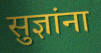
सुज्ञांना